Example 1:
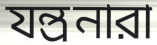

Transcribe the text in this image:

যন্ত্রনারা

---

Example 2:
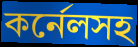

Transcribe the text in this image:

কর্নেলসহ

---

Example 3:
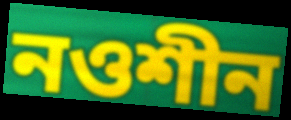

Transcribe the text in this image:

নওশীন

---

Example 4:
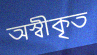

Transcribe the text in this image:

অস্বীকৃত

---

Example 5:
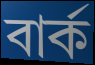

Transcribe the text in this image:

বার্ক